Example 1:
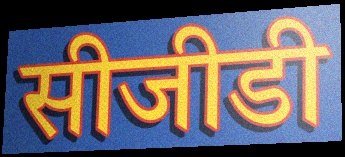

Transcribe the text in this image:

सीजीडी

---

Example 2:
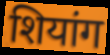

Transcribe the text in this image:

शियांग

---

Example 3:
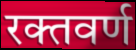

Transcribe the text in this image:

रक्तवर्ण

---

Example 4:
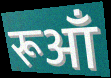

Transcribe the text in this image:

रूआँ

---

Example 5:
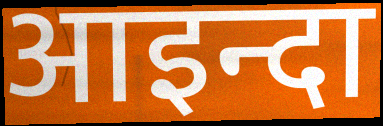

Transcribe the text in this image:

आइन्दा